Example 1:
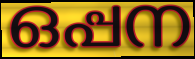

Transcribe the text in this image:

ഒപ്പന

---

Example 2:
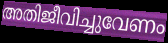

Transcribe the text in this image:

അതിജീവിച്ചുവേണം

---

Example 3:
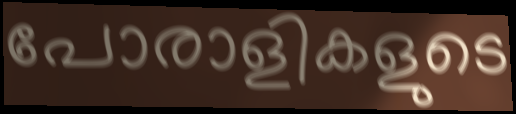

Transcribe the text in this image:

പോരാളികളുടെ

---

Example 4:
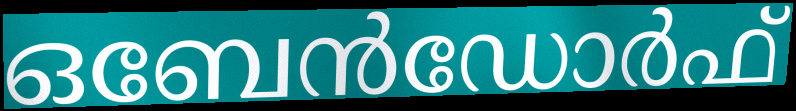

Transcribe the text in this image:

ഒബേൻഡോർഫ്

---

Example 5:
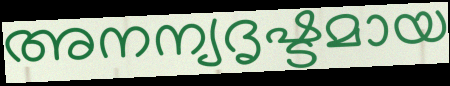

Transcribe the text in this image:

അനന്യദൃഷ്ടമായ